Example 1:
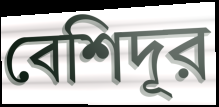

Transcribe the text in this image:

বেশিদূর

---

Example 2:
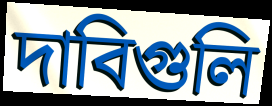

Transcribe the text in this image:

দাবিগুলি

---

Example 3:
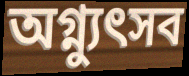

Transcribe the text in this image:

অগ্ন্যুৎসব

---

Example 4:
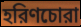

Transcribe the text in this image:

হরিণচোরা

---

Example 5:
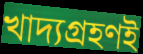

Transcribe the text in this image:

খাদ্যগ্রহণই